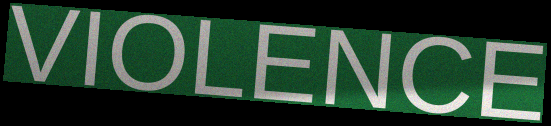
VIOLENCE